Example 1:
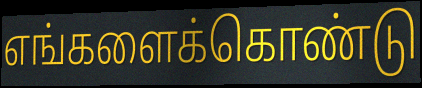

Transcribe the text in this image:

எங்களைக்கொண்டு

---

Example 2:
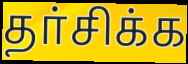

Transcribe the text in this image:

தர்சிக்க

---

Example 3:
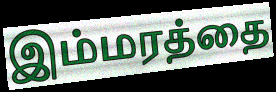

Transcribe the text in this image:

இம்மரத்தை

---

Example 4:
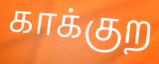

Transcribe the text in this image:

காக்குற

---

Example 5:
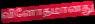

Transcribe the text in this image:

வினோதமானது